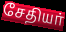
சேதியர்